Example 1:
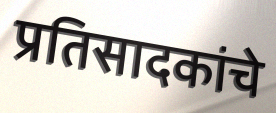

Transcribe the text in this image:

प्रतिसादकांचे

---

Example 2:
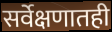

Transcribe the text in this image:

सर्वेक्षणातही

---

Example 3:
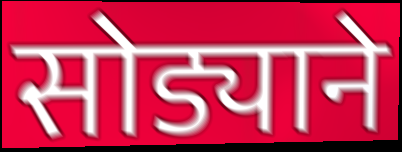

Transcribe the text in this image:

सोड्याने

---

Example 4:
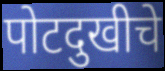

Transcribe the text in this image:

पोटदुखीचे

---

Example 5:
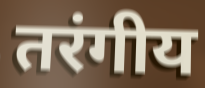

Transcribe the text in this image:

तरंगीय